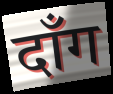
दाँग